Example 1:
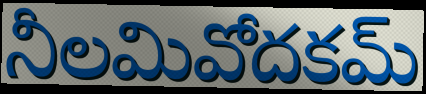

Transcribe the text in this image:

నీలమివోదకమ్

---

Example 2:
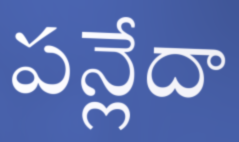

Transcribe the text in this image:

పన్లేదా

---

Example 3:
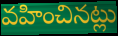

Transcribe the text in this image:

వహించినట్లు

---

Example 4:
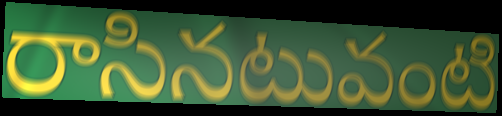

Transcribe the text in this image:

రాసినటువంటి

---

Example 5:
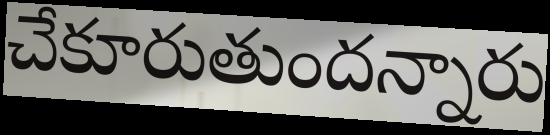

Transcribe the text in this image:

చేకూరుతుందన్నారు